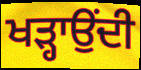
ਖੜ੍ਹਾਉਂਦੀ